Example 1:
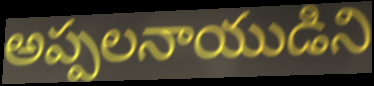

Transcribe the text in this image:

అప్పలనాయుడిని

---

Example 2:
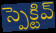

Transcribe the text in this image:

స్పెక్టివ్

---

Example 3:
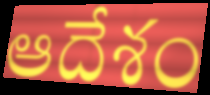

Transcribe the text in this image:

ఆదేశం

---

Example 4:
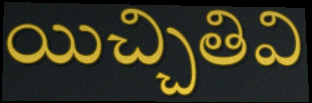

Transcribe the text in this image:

యిచ్చితివి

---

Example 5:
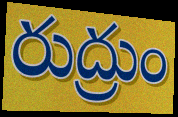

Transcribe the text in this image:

రుద్రుం